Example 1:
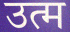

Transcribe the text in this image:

उत्म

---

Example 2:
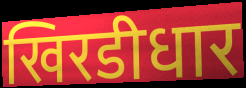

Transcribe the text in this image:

खिरडीधार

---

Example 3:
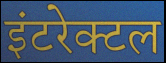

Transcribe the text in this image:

इंटरेक्टल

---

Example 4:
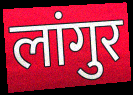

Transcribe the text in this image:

लांगुर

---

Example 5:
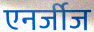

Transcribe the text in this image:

एनर्जीज